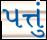
પત્તું